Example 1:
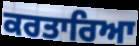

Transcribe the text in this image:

ਕਰਤਾਰਿਆ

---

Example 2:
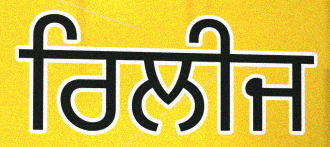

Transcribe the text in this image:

ਰਿਲੀਜ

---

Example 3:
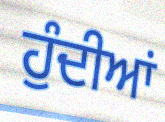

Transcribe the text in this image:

ਹੁੰਦੀਆਂ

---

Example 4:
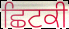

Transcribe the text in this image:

ਛਿਟਕੀ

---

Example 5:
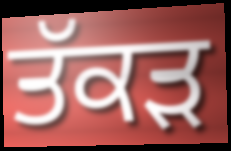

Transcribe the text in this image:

ਤੱਕੜ